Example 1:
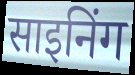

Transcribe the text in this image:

साइनिंग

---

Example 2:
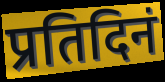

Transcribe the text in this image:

प्रतिदिनं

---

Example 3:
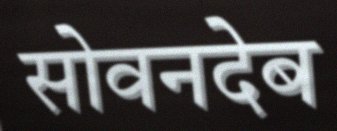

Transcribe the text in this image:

सोवनदेब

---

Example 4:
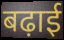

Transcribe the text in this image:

बढ़ाई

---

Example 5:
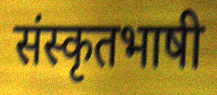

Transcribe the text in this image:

संस्कृतभाषी